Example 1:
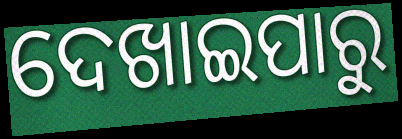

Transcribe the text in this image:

ଦେଖାଇପାରୁ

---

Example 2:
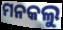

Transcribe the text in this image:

ମନକଲୁ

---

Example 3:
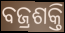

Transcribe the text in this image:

ବଜ୍ରଶକ୍ତି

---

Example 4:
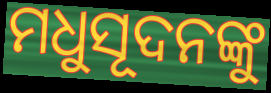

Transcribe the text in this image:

ମଧୁସୂଦନଙ୍କୁ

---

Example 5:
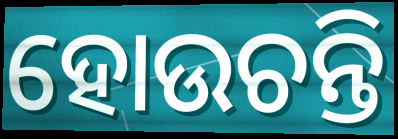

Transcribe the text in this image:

ହୋଉଚନ୍ତି